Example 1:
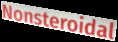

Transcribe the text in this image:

Nonsteroidal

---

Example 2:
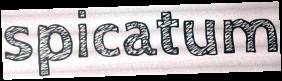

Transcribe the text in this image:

spicatum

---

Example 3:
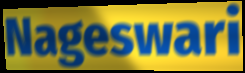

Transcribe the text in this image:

Nageswari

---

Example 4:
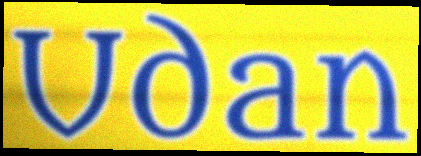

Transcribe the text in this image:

Udan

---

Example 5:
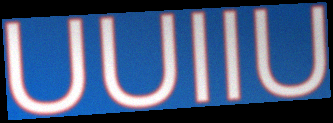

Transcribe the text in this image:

UUIIU